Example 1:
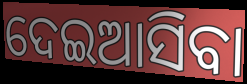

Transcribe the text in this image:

ଦେଇଆସିବା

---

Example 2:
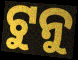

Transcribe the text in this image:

ଟୁନୁ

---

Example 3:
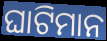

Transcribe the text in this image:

ଘାଟିମାନ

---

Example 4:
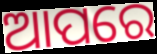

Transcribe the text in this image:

ଆପରେ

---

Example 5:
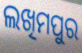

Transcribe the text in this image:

ଲଖିମପୁର